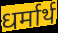
धर्मार्थ